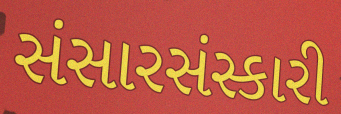
સંસારસંસ્કારી